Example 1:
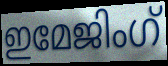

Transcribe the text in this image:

ഇമേജിംഗ്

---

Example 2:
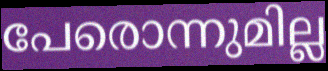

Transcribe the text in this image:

പേരൊന്നുമില്ല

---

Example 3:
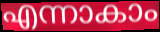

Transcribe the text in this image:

എന്നാകാം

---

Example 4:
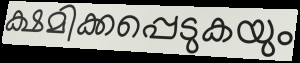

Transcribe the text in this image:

ക്ഷമിക്കപ്പെടുകയും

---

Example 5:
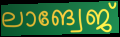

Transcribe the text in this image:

ലാങ്വേജ്